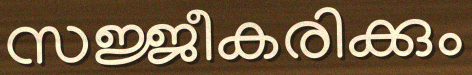
സജ്ജീകരിക്കും